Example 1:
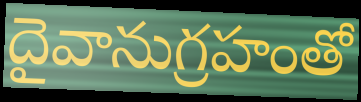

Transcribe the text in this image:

దైవానుగ్రహంతో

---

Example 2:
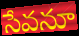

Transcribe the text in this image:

సేవనూ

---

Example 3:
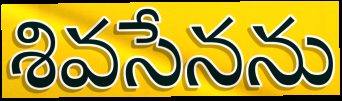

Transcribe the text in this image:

శివసేనను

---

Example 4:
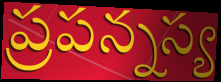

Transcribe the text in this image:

ప్రపన్నస్య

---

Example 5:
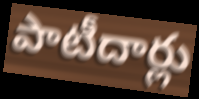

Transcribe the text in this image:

పాటీదార్లు